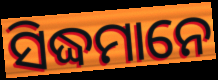
ସିଦ୍ଧମାନେ